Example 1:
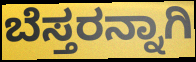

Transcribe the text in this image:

ಬೆಸ್ತರನ್ನಾಗಿ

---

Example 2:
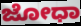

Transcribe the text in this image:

ಜೋಧಾ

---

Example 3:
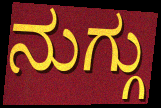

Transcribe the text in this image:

ನುಗ್ಗು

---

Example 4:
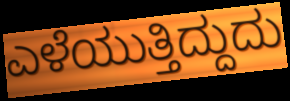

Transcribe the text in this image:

ಎಳೆಯುತ್ತಿದ್ದುದು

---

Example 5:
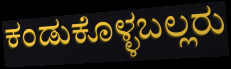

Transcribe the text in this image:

ಕಂಡುಕೊಳ್ಳಬಲ್ಲರು